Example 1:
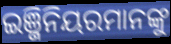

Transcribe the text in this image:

ଇଞ୍ଜିନିୟରମାନଙ୍କୁ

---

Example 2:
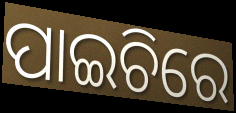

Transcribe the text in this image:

ପାଇଚିରେ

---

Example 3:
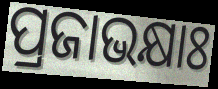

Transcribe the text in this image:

ପ୍ରଜାଭକ୍ଷାଃ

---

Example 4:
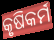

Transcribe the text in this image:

କୃଷିକର୍ମ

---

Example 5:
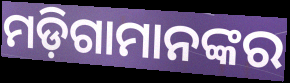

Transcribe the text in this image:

ମଡ଼ିଗାମାନଙ୍କର